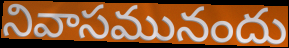
నివాసమునందు